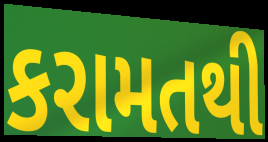
કરામતથી